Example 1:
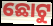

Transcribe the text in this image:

ଛୋଟୁ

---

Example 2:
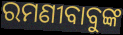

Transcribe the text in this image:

ରମଣୀବାବୁଙ୍କ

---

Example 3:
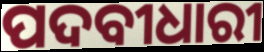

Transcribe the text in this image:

ପଦବୀଧାରୀ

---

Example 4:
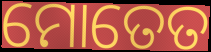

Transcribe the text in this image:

ମୋତେତ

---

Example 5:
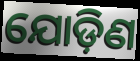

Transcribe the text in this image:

ଯୋଡ଼ିଣ